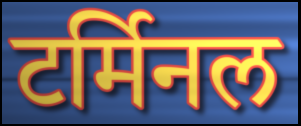
टर्मिनल